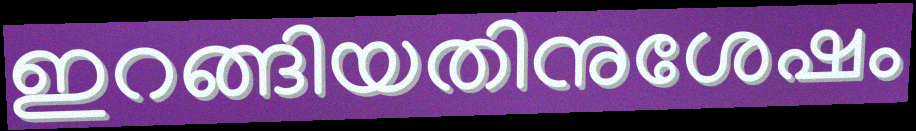
ഇറങ്ങിയതിനുശേഷം